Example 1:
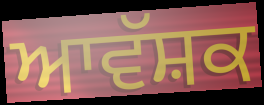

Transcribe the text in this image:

ਆਵੱਸ਼ਕ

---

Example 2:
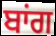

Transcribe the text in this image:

ਬਾਂਗ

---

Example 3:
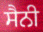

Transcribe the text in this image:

ਸੈਨੀ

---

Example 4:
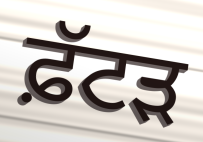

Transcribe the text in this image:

ਫ਼ੱਟੜ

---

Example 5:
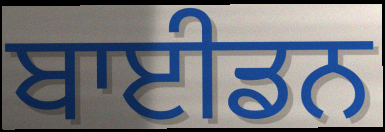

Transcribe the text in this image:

ਬਾਈਡਨ